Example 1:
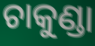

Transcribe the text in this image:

ଚାକୁଣ୍ଡା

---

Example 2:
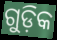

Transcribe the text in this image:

ଗୁଡ଼ିକ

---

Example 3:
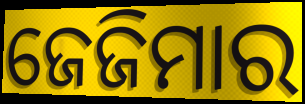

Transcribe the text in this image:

ଜେଜିମାର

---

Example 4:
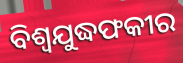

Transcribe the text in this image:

ବିଶ୍ୱଯୁଦ୍ଧଫକୀର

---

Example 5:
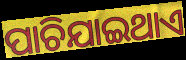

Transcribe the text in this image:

ପାଚିଯାଇଥାଏ